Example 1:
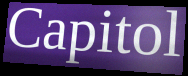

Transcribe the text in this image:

Capitol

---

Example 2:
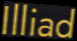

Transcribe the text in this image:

Illiad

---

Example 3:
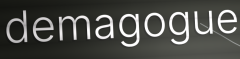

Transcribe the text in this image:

demagogue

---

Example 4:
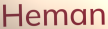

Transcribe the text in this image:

Heman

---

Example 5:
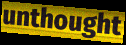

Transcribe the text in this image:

unthought